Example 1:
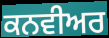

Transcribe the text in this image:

ਕਨਵੀਅਰ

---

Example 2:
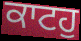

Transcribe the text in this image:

ਕਾਟਹੁ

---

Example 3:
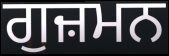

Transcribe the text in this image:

ਗੁਜ਼ਮਨ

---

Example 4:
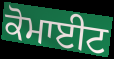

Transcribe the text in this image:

ਕੋਮਾਈਟ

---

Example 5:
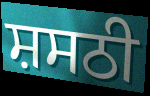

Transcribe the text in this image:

ਸ਼ਸਠੀ